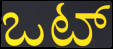
ಒಟ್